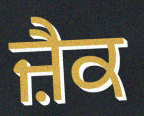
ਜ਼ੈਕ